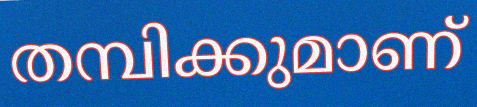
തമ്പിക്കുമാണ്